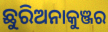
ଛୁରିଅନାକୁଞ୍ଜର